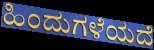
ಹಿಂದುಗಳೆಯದೆ